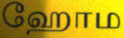
ஹோம